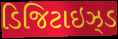
ડિજિટાઇઝ્ડ